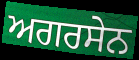
ਅਗਰਸੇਨ